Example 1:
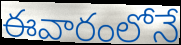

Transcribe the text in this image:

ఈవారంలోనే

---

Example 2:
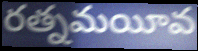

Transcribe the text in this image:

రత్నమయీవ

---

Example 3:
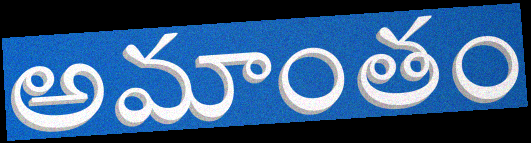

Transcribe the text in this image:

అమాంతం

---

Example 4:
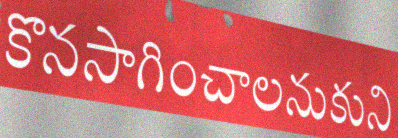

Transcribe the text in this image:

కొనసాగించాలనుకుని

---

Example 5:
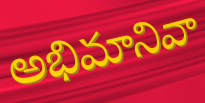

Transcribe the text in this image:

అభిమానివా